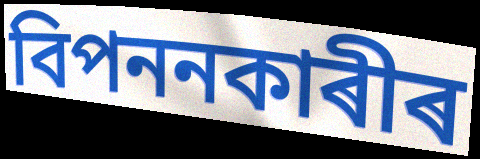
বিপননকাৰীৰ